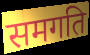
समगति